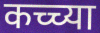
कच्च्या